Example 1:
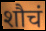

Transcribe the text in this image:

शौचं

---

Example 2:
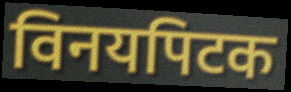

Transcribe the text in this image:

विनयपिटक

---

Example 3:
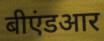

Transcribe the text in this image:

बीएंडआर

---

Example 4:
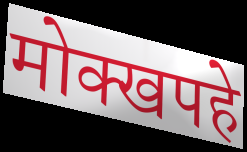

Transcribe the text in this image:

मोक्खपहे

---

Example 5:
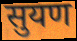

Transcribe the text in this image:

सुयण